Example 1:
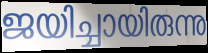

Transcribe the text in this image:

ജയിച്ചായിരുന്നു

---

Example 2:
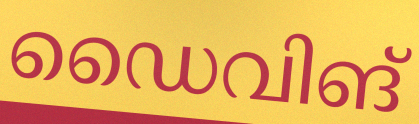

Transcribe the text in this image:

ഡൈവിങ്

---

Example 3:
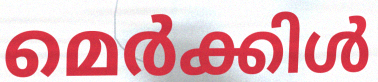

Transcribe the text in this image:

മെർക്കിൾ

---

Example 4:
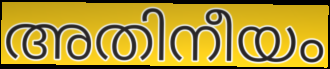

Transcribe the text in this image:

അതിനീയം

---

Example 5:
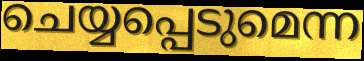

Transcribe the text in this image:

ചെയ്യപ്പെടുമെന്ന